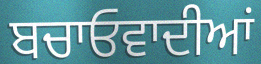
ਬਚਾਓਵਾਦੀਆਂ